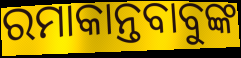
ରମାକାନ୍ତବାବୁଙ୍କ